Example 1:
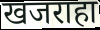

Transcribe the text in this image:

खजराहा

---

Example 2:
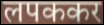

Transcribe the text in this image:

लपककर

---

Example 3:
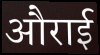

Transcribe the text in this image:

औराई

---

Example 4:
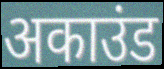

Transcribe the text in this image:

अकाउंड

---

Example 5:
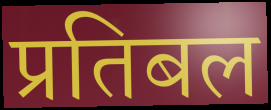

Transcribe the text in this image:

प्रतिबल